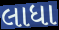
લાધા